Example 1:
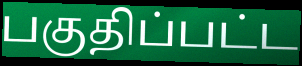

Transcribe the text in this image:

பகுதிப்பட்ட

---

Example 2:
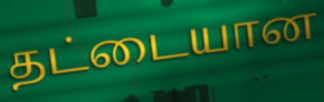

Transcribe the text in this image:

தட்டையான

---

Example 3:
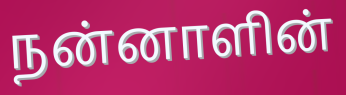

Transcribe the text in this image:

நன்னாளின்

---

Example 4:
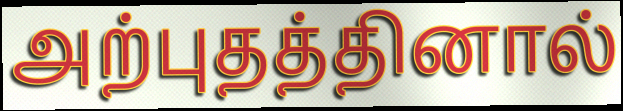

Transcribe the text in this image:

அற்புதத்தினால்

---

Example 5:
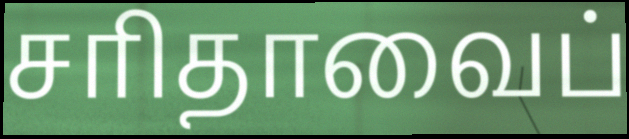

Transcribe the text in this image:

சரிதாவைப்